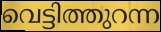
വെട്ടിത്തുറന്ന